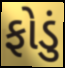
ફોડું